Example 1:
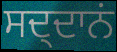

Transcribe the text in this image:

ਸਦ੍ਦਾਨਂ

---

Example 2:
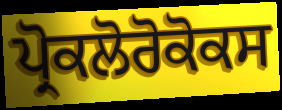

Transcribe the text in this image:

ਪ੍ਰੋਕਲੋਰੋਕੋਕਸ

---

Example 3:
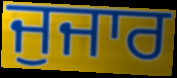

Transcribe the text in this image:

ਜੁਜਾਰ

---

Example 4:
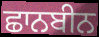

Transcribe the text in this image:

ਛਾਨਬੀਨ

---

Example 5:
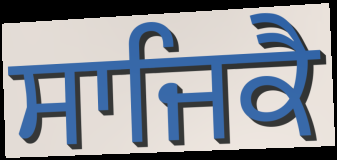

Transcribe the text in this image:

ਸਾਜਿਕੈ